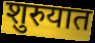
शुरुयात